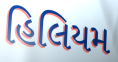
હિલિયમ